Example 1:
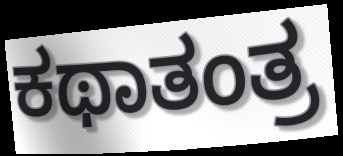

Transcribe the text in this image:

ಕಥಾತಂತ್ರ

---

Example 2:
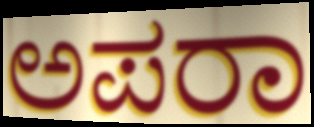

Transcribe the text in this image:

ಅಪರಾ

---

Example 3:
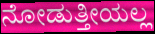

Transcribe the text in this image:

ನೋಡುತ್ತೀಯಲ್ಲ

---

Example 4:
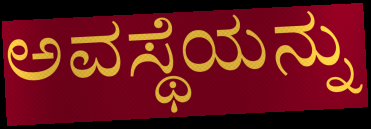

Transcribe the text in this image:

ಅವಸ್ಥೆಯನ್ನು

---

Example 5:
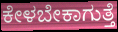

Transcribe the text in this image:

ಕೇಳಬೇಕಾಗುತ್ತೆ